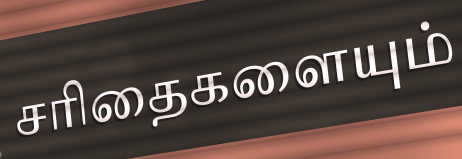
சரிதைகளையும்